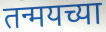
तन्मयच्या